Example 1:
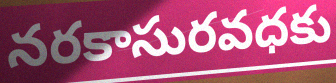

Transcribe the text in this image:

నరకాసురవధకు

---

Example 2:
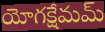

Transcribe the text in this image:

యోగక్షేమమ్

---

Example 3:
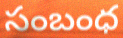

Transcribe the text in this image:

సంబంధ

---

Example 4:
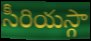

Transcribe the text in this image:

సీరియస్గా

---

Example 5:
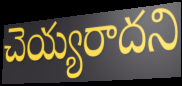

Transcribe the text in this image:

చెయ్యరాదని